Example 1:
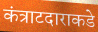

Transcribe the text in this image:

कंत्राटदाराकडे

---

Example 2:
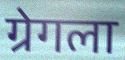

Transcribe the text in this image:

ग्रेगला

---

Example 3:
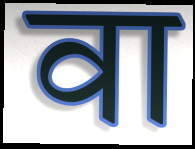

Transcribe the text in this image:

वा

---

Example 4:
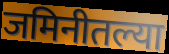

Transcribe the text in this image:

जमिनीतल्या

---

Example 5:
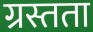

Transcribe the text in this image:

ग्रस्तता